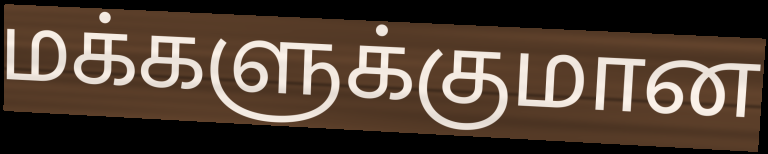
மக்களுக்குமான